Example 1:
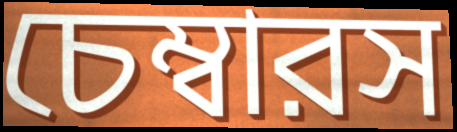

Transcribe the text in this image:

চেম্বারস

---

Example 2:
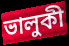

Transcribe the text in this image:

ভালুকী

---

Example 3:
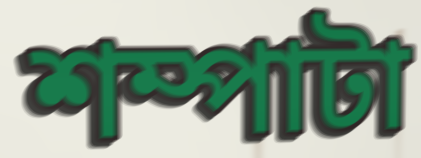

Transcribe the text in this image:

শম্পাটা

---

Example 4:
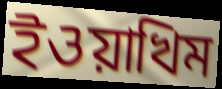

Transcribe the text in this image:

ইওয়াখিম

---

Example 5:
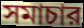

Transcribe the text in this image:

সমাচার